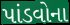
પાંડવોના